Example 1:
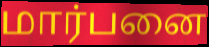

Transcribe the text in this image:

மார்பனை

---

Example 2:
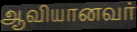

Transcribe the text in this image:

ஆவியானவர்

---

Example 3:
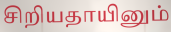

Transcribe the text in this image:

சிறியதாயினும்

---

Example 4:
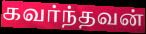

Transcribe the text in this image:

கவர்ந்தவன்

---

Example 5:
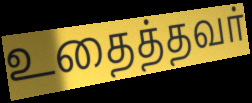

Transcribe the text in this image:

உதைத்தவர்